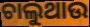
ଚାଲୁଥାଉ